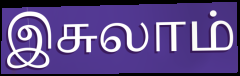
இசுலாம்